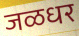
जळधर